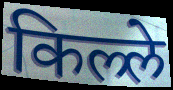
किल्ले